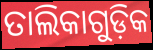
ତାଲିକାଗୁଡ଼ିକ